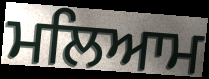
ਮਲਿਆਮ